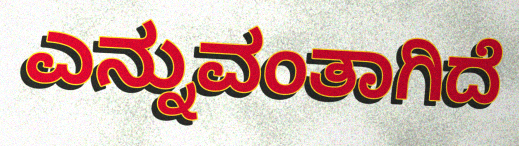
ಎನ್ನುವಂತಾಗಿದೆ